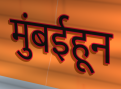
मुंबईहून